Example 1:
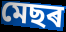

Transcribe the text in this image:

মেছৰ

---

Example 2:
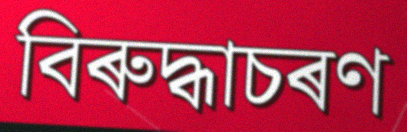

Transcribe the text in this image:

বিৰুদ্ধাচৰণ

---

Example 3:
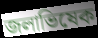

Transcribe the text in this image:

জলাভিষেক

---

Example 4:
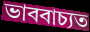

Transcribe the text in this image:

ভাববাচ্যত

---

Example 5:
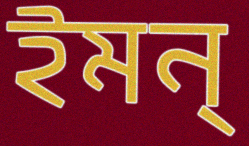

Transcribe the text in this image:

ইমন্